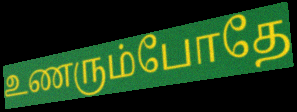
உணரும்போதே